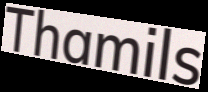
Thamils